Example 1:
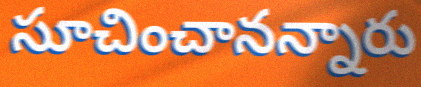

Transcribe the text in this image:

సూచించానన్నారు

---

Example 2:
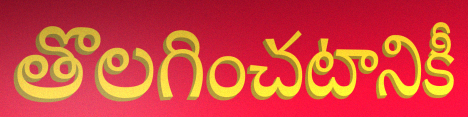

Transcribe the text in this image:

తొలగించటానికీ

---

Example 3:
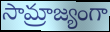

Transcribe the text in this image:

సామ్రాజ్యంగా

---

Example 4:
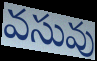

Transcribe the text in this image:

వసువు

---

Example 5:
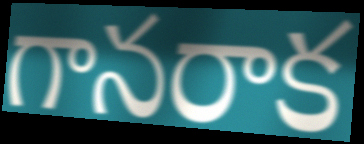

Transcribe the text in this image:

గానరాక